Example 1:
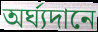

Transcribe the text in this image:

অর্ঘ্যদানে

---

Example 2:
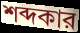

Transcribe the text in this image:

শব্দকার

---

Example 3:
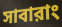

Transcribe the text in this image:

সাবারাং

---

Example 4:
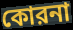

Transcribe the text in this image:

কোরনা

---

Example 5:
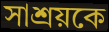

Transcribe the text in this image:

সাশ্রয়কে